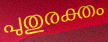
പുതുരക്തം